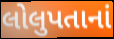
લોલુપતાનાં